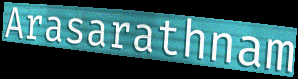
Arasarathnam